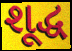
શૂદ્ધ